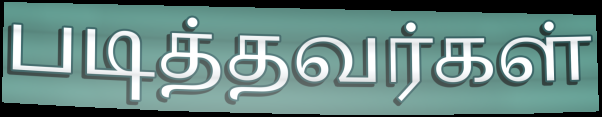
படித்தவர்கள்